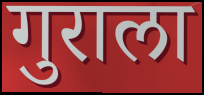
गुराला